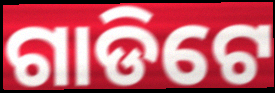
ଗାଡିଟେ